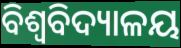
ବିଶ୍ଵବିଦ୍ୟାଳୟ